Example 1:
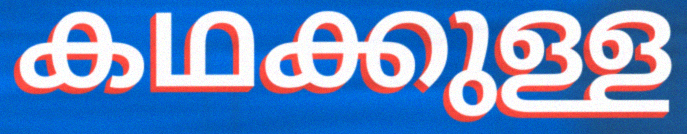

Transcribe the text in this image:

കഥക്കുള്ള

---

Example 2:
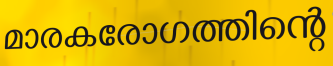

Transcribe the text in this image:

മാരകരോഗത്തിന്റെ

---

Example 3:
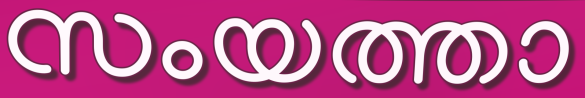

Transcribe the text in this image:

സംയത്താ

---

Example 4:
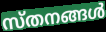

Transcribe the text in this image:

സ്തനങ്ങൾ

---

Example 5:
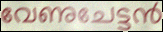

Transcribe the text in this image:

വേണുചേട്ടൻ